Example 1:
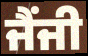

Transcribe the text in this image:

ਜੈਂਜੀ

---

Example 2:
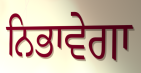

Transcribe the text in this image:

ਨਿਭਾਵੇਗਾ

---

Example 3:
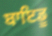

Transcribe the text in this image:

ਬਾਇਡੂ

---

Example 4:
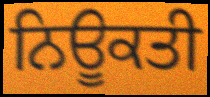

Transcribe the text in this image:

ਨਿਊਕਤੀ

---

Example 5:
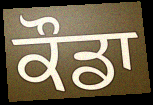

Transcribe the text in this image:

ਕੌਡਾ